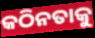
କଠିନତାକୁ